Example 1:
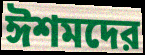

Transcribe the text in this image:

ঈশমদের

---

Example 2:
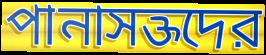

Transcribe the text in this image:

পানাসক্তদের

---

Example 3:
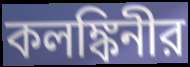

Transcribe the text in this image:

কলঙ্কিনীর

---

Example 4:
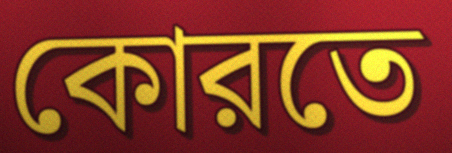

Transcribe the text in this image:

কোরতে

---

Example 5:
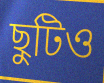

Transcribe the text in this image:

ছুটিও